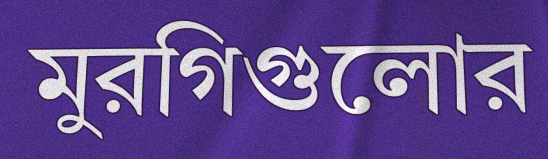
মুরগিগুলোর